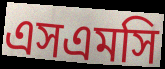
এসএমসি